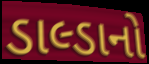
ડાલ્ડાનો